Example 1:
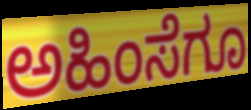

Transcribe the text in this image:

ಅಹಿಂಸೆಗೂ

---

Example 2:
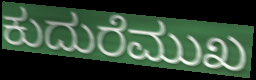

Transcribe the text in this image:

ಕುದುರೆಮುಖ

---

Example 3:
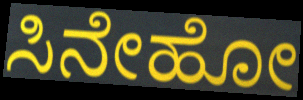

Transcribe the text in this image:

ಸಿನೇಹೋ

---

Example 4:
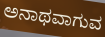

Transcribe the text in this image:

ಅನಾಥವಾಗುವ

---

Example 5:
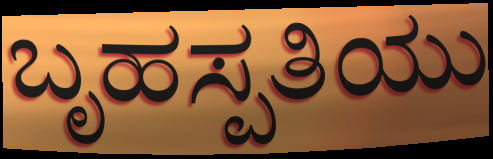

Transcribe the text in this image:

ಬೃಹಸ್ಪತಿಯು